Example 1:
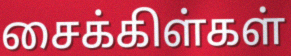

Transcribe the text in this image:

சைக்கிள்கள்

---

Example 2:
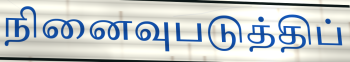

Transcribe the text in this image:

நினைவுபடுத்திப்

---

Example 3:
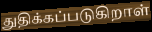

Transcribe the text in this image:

துதிக்கப்படுகிறாள்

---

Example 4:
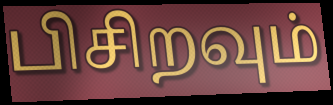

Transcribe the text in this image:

பிசிறவும்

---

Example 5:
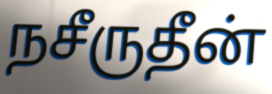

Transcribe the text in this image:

நசீருதீன்